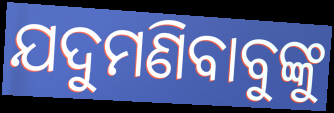
ଯଦୁମଣିବାବୁଙ୍କୁ